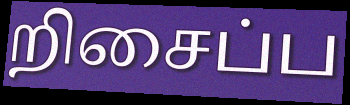
றிசைப்ப